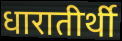
धारातीर्थी